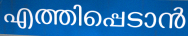
എത്തിപ്പെടാൻ